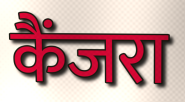
कैंजरा